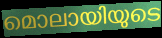
മൊലായിയുടെ